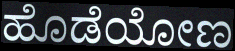
ಹೊಡೆಯೋಣ